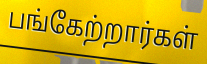
பங்கேற்றார்கள்